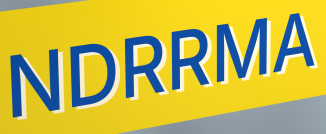
NDRRMA